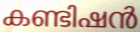
കണ്ടിഷൻ